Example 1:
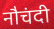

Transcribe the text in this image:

नौचंदी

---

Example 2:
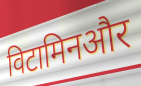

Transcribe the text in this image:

विटामिनऔर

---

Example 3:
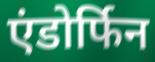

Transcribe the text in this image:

एंडोर्फिन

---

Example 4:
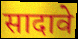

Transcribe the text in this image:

सादावे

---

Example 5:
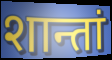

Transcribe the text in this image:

शान्तां